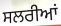
ਸਲਰੀਆਂ